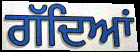
ਗੱਦਿਆਂ